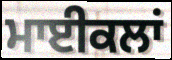
ਮਾਈਕਲਾਂ